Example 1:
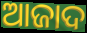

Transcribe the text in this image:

ଆଜାଦ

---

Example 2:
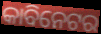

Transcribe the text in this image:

କାବିନେଟର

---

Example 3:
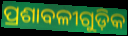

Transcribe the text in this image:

ପ୍ରଶାବଳୀଗୁଡ଼ିକ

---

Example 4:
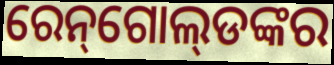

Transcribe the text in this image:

ରେନ୍‌ଗୋଲ୍‌ଡଙ୍କର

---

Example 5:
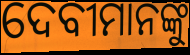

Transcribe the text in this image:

ଦେବୀମାନଙ୍କୁ